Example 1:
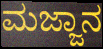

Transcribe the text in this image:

ಮಜ್ಜಾನ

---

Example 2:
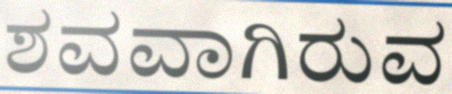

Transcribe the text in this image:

ಶವವಾಗಿರುವ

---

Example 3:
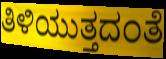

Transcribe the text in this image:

ತಿಳಿಯುತ್ತದಂತೆ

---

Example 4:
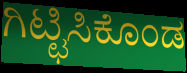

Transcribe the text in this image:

ಗಿಟ್ಟಿಸಿಕೊಂಡ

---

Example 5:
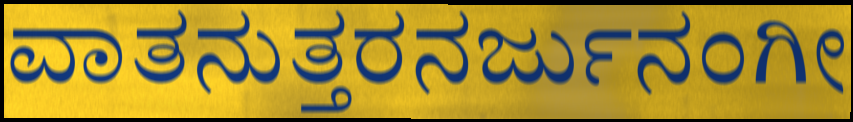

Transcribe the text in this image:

ವಾತನುತ್ತರನರ್ಜುನಂಗೀ